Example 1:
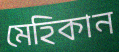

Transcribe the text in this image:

মেহিকান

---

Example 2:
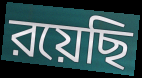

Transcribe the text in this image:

রয়েছি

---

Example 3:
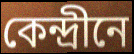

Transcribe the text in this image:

কেন্দ্রীনে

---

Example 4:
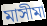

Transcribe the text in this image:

মাসীমা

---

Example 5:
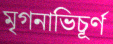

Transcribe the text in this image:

মৃগনাভিচূর্ণ